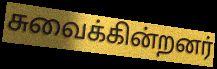
சுவைக்கின்றனர்